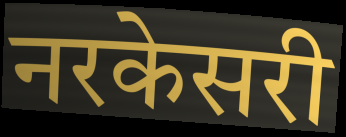
नरकेसरी